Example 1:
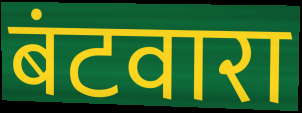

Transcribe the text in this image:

बंटवारा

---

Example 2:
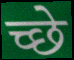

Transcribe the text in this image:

च्छे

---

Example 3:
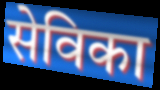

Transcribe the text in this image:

सेविका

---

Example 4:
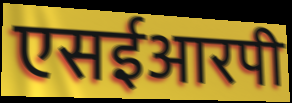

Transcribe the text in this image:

एसईआरपी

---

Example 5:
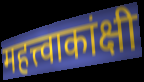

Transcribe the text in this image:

महत्त्वाकांक्षी